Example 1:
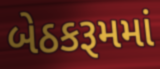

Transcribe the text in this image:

બેઠકરૂમમાં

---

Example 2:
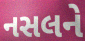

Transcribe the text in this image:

નસલને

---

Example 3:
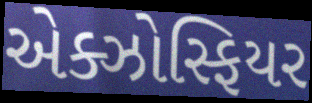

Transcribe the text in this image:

એક્ઝોસ્ફિયર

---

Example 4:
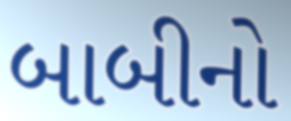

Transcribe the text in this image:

બાબીનો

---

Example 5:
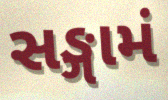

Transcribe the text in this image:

સઙ્ગામં